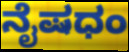
ನೈಷಧಂ